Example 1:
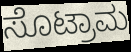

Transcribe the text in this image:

ಸೊಟ್ರಾಮ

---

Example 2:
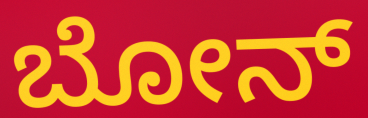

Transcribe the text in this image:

ಬೋನ್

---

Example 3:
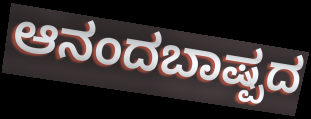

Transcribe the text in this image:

ಆನಂದಬಾಷ್ಪದ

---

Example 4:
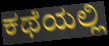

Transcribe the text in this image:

ಕಥೆಯಲ್ಲಿ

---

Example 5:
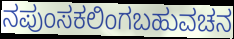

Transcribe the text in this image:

ನಪುಂಸಕಲಿಂಗಬಹುವಚನ